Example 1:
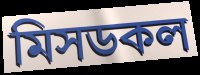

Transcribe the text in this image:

মিসডকল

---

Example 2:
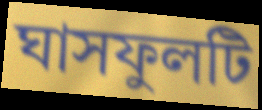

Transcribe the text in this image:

ঘাসফুলটি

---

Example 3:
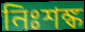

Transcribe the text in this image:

নিঃশঙ্ক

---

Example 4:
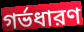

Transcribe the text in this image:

গর্ভধারণ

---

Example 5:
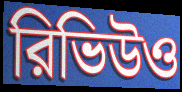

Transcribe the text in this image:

রিভিউও